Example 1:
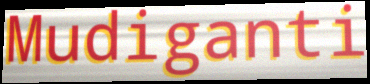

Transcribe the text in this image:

Mudiganti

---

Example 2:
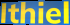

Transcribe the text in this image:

Ithiel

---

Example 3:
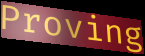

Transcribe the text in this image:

Proving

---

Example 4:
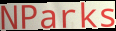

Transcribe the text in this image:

NParks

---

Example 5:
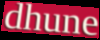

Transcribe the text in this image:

dhune